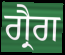
ਗ੍ਰੈਗ